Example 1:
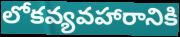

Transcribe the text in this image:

లోకవ్యవహారానికి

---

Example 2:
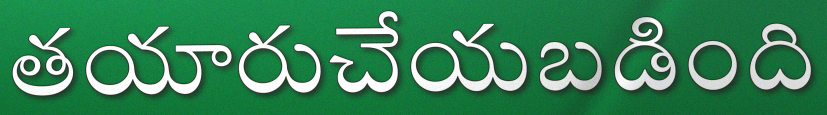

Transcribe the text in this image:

తయారుచేయబడింది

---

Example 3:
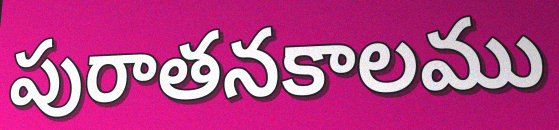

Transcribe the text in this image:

పురాతనకాలము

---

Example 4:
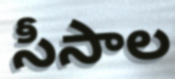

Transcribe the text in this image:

సీసాల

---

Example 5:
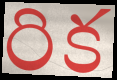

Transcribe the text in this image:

రిక